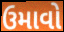
ઉમાવો